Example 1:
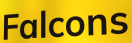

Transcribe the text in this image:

Falcons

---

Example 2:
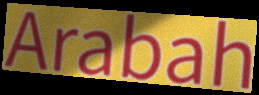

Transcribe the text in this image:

Arabah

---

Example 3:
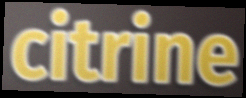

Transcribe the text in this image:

citrine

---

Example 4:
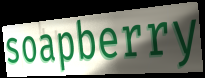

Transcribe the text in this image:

soapberry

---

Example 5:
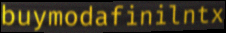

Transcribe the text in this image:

buymodafinilntx